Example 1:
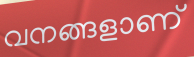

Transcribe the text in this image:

വനങ്ങളാണ്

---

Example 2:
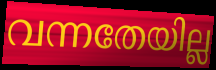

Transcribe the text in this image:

വന്നതേയില്ല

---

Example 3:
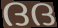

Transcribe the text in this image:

ദദ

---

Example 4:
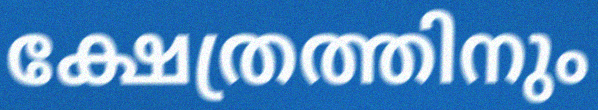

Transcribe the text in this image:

ക്ഷേത്രത്തിനും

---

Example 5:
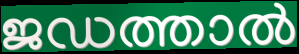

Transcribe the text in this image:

ജഡത്താൽ